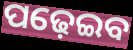
ପଢ଼େଇବ